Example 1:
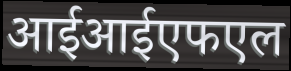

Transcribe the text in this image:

आईआईएफएल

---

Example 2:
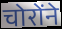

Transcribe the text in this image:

चोरोंने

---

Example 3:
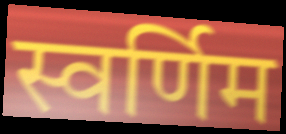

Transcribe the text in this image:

स्‍वर्णिम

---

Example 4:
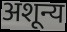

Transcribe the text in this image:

अशून्य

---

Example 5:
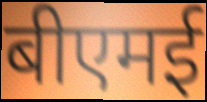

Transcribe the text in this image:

बीएमई